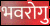
भवरोगु